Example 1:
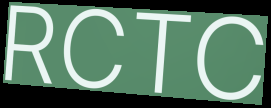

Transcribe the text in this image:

RCTC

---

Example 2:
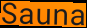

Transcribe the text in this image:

Sauna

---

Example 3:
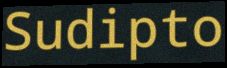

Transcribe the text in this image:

Sudipto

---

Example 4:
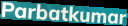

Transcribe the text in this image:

Parbatkumar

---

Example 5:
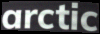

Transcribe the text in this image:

arctic